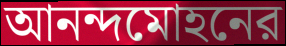
আনন্দমোহনের